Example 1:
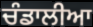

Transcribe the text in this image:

ਚੰਡਾਲੀਆ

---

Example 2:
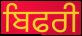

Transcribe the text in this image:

ਬਿਫਰੀ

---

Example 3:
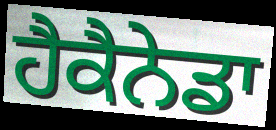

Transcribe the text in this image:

ਹੈਕੈਨੇਡਾ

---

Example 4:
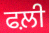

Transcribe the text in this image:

ਫਲ਼ੀ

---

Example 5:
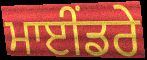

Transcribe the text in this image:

ਮਾਈਂਡਰੇ